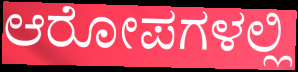
ಆರೋಪಗಳಲ್ಲಿ